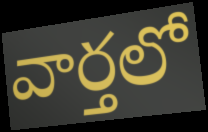
వార్తలో